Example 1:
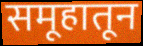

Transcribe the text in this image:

समूहातून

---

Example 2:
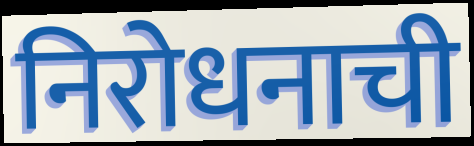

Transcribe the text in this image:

निरोधनाची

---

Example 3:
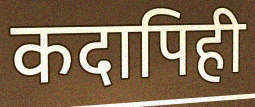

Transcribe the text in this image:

कदापिही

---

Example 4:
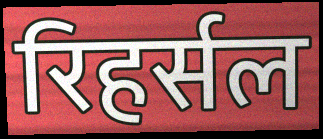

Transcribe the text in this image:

रिहर्सल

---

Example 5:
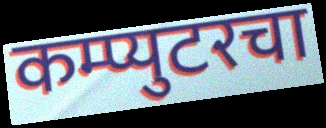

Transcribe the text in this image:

कम्प्युटरचा